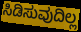
ಸಿಡಿಸುವುದಿಲ್ಲ